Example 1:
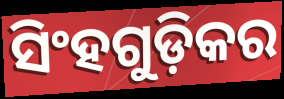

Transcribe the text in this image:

ସିଂହଗୁଡ଼ିକର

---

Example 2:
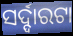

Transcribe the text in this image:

ସର୍ଦ୍ଦାରଟା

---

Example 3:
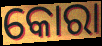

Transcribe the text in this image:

କୋରା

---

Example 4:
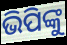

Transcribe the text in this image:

ଭିପିଙ୍କୁ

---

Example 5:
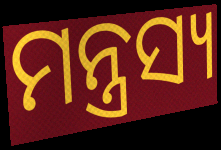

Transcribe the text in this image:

ମନ୍ତ୍ରସ୍ୟ